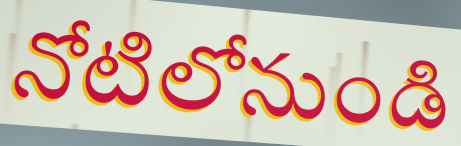
నోటిలోనుండి